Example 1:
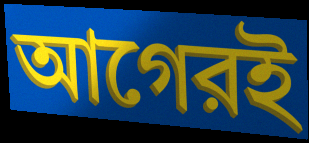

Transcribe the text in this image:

আগেরই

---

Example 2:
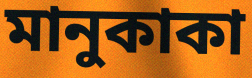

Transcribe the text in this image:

মানুকাকা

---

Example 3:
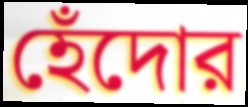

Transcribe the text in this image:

হেঁদোর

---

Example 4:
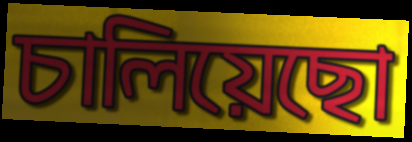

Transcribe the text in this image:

চালিয়েছো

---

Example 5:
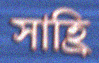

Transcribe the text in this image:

সাহ্রি